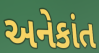
અનેકાંત